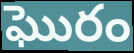
ఘొరం